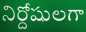
నిర్దోషులగా